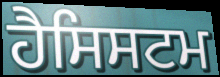
ਹੈਸਿਸਟਮ